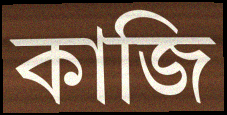
কাজি